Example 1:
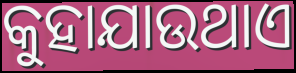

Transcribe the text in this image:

କୁହାଯାଉଥାଏ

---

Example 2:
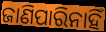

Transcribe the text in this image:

ଜାଣିପାରିନାହିଁ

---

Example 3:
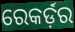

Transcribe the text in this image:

ରେକର୍ଡ଼ର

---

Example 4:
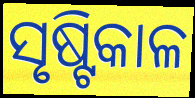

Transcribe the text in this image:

ସୃଷ୍ଟିକାଳ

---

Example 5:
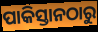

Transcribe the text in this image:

ପାକିସ୍ତାନଠାରୁ